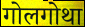
गोलगोथा